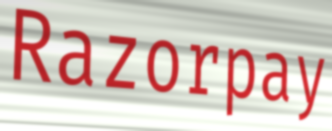
Razorpay